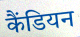
कैंडियन